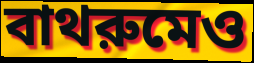
বাথরুমেও